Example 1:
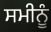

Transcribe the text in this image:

ਸਮੀਨੂੰ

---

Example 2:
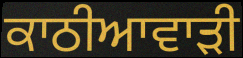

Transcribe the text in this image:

ਕਾਠੀਆਵਾੜੀ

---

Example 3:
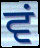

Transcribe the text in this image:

ਵਂ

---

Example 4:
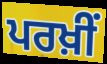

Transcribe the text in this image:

ਪਰਖ਼ੀਂ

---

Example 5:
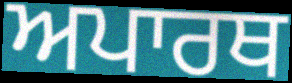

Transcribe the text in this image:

ਅਪਾਰਥ